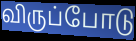
விருப்போடு